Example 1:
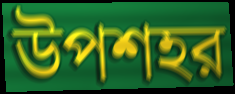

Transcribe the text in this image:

উপশহর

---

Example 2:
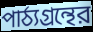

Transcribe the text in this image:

পাঠ্যগ্রন্থের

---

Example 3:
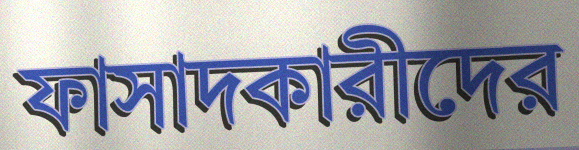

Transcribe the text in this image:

ফাসাদকারীদের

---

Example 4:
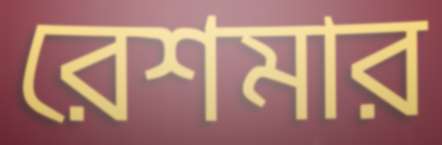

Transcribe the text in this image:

রেশমার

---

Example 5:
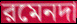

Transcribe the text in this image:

রমেনদা